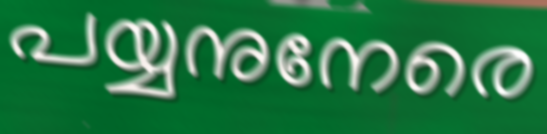
പയ്യനുനേരെ